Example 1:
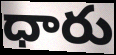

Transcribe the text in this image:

ధారు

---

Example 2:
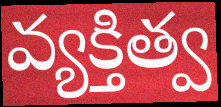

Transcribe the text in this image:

వ్యక్తిత్వ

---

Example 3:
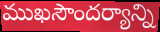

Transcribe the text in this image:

ముఖసౌందర్యాన్ని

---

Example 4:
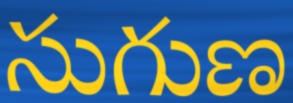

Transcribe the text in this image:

సుగుణ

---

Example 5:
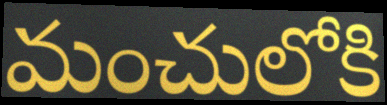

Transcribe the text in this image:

మంచులోకి